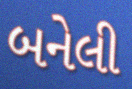
બનેલી